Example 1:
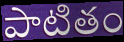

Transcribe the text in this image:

పాటితం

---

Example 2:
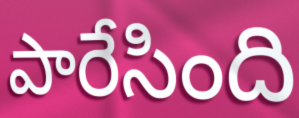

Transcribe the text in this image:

పారేసింది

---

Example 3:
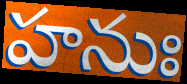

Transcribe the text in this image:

హనుః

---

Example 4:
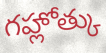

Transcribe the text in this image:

గహ్లోత్కు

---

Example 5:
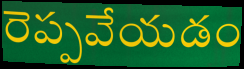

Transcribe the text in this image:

రెప్పవేయడం